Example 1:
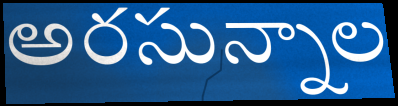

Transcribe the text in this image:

అరసున్నాల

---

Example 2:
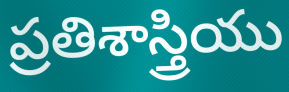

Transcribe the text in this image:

ప్రతిశాస్త్రియు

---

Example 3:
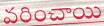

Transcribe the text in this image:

వరించాయి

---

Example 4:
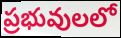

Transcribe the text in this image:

ప్రభువులలో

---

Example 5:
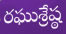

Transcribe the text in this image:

రఘుశ్రేష్ఠ